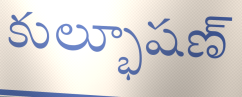
కుల్భూషణ్